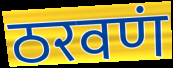
ठरवणं